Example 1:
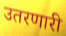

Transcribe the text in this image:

उतरणारी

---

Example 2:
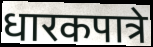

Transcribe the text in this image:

धारकपात्रे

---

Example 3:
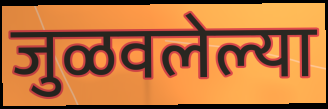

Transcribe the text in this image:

जुळवलेल्या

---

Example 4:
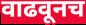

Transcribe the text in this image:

वाढवूनच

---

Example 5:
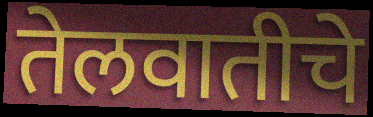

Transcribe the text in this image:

तेलवातीचे